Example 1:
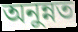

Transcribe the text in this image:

অনুন্নত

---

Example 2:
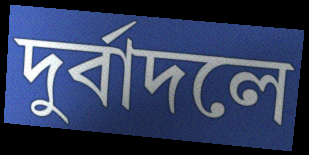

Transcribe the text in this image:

দুর্বাদলে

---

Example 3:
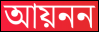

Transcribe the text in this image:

আয়নন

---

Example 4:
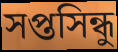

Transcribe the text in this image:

সপ্তসিন্ধু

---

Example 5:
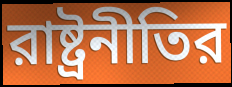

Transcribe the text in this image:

রাষ্ট্রনীতির